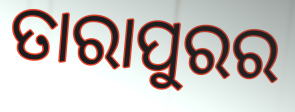
ତାରାପୁରର